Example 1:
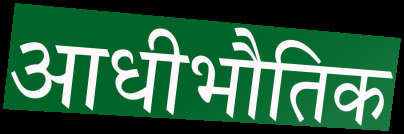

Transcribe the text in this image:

आधीभौतिक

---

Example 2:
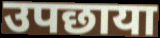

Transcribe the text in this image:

उपछाया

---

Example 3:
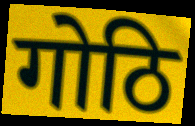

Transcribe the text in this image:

गोठि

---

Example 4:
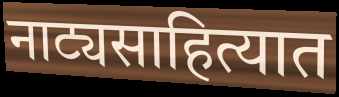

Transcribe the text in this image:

नाट्यसाहित्यात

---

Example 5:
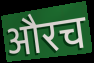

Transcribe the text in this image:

औरच